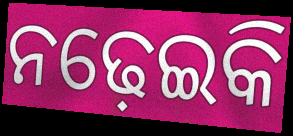
ନଢ଼େଇକି